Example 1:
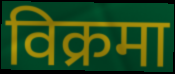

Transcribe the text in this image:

विक्रमा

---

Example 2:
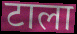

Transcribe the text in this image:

टाला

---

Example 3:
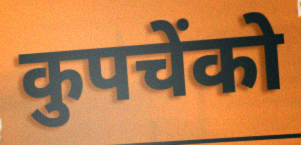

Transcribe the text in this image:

कुपचेंको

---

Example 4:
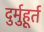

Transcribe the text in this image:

दुर्मुहूर्त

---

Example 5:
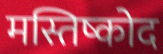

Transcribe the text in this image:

मस्तिष्कोद